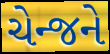
ચેન્જને